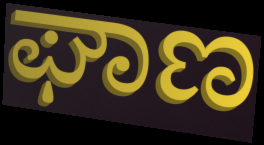
ಘಾಣ